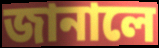
জানালে